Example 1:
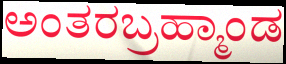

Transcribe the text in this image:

ಅಂತರಬ್ರಹ್ಮಾಂಡ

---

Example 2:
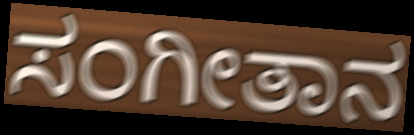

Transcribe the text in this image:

ಸಂಗೀತಾನ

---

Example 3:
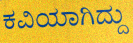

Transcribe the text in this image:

ಕವಿಯಾಗಿದ್ದು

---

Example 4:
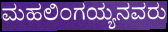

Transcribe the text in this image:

ಮಹಲಿಂಗಯ್ಯನವರು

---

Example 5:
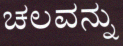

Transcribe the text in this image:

ಚಲವನ್ನು